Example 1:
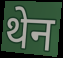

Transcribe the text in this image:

थेन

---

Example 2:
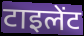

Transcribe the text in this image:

टाइलेंट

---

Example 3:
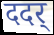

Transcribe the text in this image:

ददर्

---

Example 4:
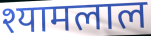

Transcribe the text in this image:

श्यामलाल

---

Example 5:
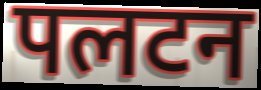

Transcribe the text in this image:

पलटन